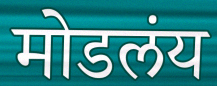
मोडलंय